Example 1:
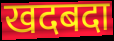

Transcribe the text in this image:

खदबदा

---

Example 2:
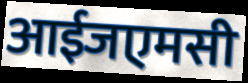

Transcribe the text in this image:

आईजएमसी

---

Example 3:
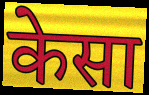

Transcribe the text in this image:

केसा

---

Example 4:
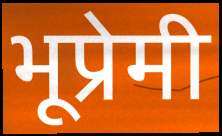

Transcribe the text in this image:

भूप्रेमी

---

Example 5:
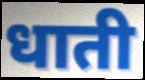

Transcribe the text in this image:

धाती